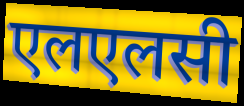
एलएलसी